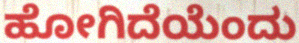
ಹೋಗಿದೆಯೆಂದು